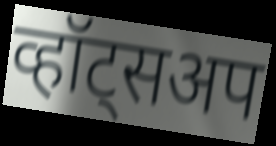
व्हॉट्सअप